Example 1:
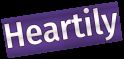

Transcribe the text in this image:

Heartily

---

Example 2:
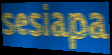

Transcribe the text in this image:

sesiapa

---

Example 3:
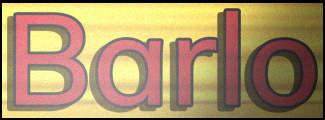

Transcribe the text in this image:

Barlo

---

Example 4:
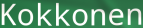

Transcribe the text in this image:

Kokkonen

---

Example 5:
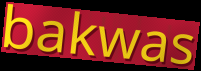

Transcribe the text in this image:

bakwas